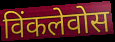
विंकलेवोस